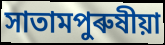
সাতামপুৰুষীয়া